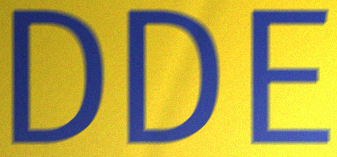
DDE